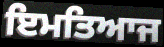
ਇਮਤਿਆਜ